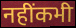
नहींकभी